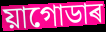
য়াগোডাৰ